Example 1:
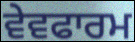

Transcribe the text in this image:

ਵੇਵਫਾਰਮ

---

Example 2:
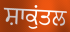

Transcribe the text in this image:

ਸ਼ਾਕੁਂਤਲ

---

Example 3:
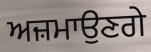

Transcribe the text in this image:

ਅਜ਼ਮਾਉਣਗੇ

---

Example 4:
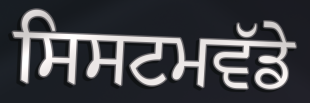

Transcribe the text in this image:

ਸਿਸਟਮਵੱਡੇ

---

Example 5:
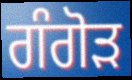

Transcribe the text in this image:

ਗੰਗੋੜ